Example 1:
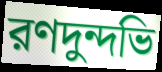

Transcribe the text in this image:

রণদুন্দভি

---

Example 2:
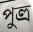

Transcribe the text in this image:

পুত্ত্র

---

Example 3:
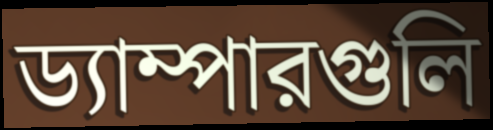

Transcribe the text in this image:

ড্যাম্পারগুলি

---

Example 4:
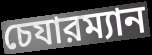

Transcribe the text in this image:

চেযারম্যান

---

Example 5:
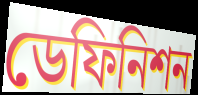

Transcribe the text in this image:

ডেফিনিশন